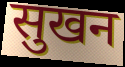
सुखन